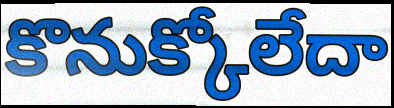
కొనుక్కోలేదా